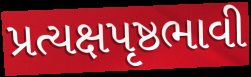
પ્રત્યક્ષપૃષ્ઠભાવી